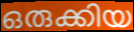
ഒരുക്കിയ